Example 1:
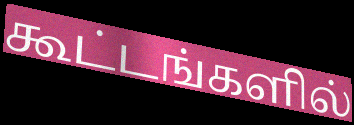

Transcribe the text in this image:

கூட்டங்களில்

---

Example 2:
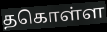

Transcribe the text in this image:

தகொள்ள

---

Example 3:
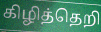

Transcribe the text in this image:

கிழித்தெறி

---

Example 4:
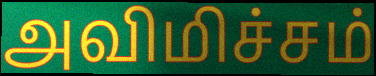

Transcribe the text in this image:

அவிமிச்சம்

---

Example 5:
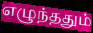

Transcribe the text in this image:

எழுந்ததும்